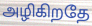
அழிகிறதே